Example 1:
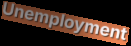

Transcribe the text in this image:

Unemployment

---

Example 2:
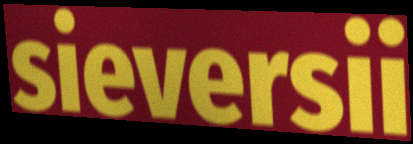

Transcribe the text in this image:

sieversii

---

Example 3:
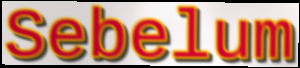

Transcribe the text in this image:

Sebelum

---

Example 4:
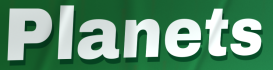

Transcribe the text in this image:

Planets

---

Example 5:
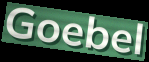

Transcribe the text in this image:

Goebel